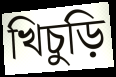
খিচুড়ি